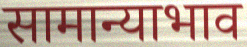
सामान्याभाव